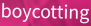
boycotting